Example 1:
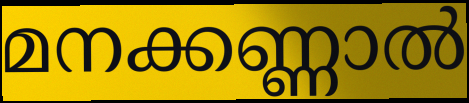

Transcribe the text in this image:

മനക്കണ്ണാൽ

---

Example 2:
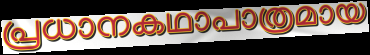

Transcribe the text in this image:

പ്രധാനകഥാപാത്രമായ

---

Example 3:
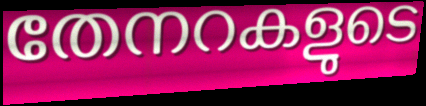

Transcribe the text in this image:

തേനറകളുടെ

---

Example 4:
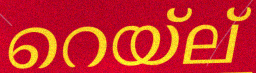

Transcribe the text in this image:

റെയ്ല്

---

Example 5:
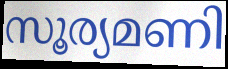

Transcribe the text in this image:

സൂര്യമണി